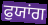
ਫੁਯਾਂਗ